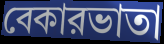
বেকারভাতা